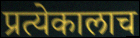
प्रत्येकालाच